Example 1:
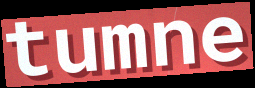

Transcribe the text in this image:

tumne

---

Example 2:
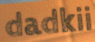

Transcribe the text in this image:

dadkii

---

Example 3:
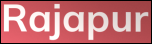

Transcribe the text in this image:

Rajapur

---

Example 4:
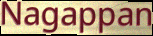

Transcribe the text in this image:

Nagappan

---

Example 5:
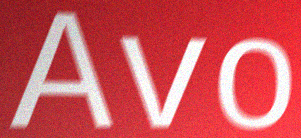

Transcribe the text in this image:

Avo